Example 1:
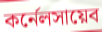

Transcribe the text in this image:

কর্নেলসায়েব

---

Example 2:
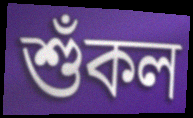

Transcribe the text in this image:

শুঁকল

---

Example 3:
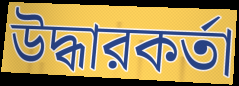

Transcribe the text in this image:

উদ্ধারকর্তা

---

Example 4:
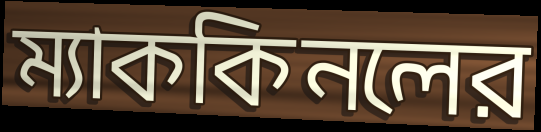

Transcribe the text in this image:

ম্যাককিনলের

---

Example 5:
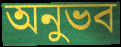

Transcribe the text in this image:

অনুভব